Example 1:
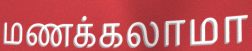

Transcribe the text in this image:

மணக்கலாமா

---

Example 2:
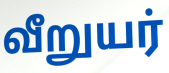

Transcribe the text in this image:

வீறுயர்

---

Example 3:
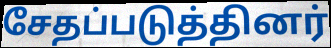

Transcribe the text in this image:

சேதப்படுத்தினர்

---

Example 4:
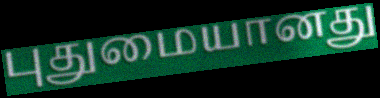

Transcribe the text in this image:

புதுமையானது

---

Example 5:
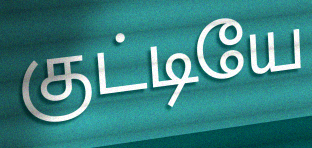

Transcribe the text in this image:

குட்டியே